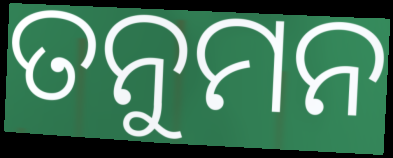
ତନୁମନ